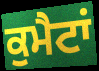
ਕੁਮੈਟਾਂ